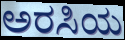
ಅರಸಿಯ